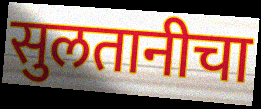
सुलतानीचा